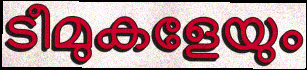
ടീമുകളേയും